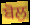
ਬੋਲੁ